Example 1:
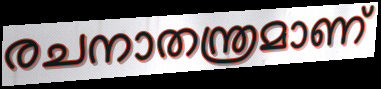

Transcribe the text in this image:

രചനാതന്ത്രമാണ്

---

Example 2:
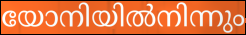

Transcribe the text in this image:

യോനിയിൽനിന്നും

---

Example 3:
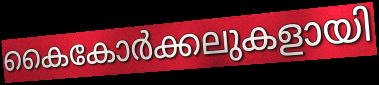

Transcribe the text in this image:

കൈകോർക്കലുകളായി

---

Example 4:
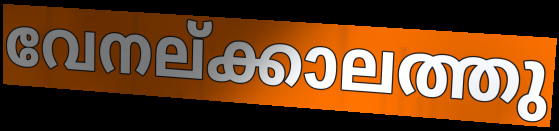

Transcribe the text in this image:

വേനല്ക്കാലത്തു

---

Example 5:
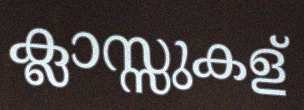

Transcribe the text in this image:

ക്ലാസ്സുകള്